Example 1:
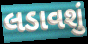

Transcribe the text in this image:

લડાવશું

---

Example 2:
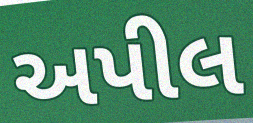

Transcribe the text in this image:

અપીલ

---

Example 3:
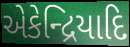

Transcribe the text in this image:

એકેન્દ્રિયાદિ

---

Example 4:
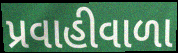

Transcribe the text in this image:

પ્રવાહીવાળા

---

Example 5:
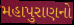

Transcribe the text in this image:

મહાપુરાણનો